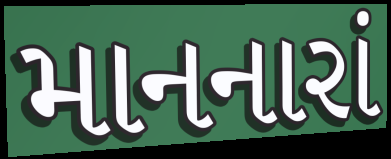
માનનારાં